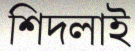
শিদলাই